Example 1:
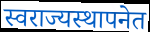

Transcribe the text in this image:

स्वराज्यस्थापनेत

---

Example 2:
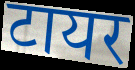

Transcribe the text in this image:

टायर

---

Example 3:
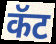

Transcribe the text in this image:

कॅट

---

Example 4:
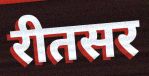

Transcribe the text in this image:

रीतसर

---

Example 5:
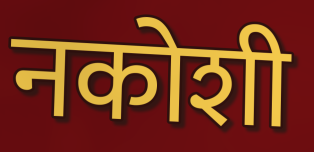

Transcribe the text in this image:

नकोशी